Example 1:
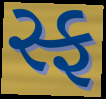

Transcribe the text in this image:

સ્ફ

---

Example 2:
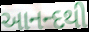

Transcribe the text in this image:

આનન્દથી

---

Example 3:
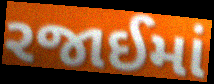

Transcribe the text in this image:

રજાઈમાં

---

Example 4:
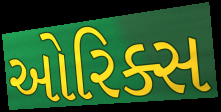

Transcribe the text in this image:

ઓરિક્સ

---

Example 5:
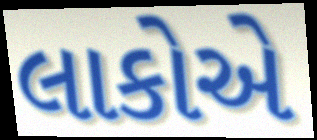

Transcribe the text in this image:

લાકોએ